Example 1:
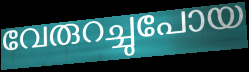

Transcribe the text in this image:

വേരുറച്ചുപോയ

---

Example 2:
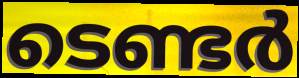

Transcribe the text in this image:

ടെണ്ടർ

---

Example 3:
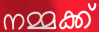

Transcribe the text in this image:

നമ്മക്ക്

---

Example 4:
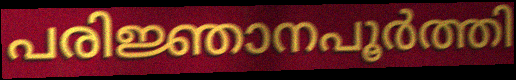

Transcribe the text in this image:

പരിജ്ഞാനപൂർത്തി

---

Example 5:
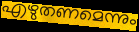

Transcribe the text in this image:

എഴുതണമെന്നും